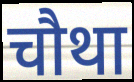
चौथा